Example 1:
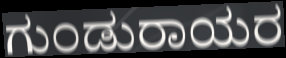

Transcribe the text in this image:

ಗುಂಡುರಾಯರ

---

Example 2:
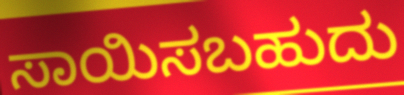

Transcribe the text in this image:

ಸಾಯಿಸಬಹುದು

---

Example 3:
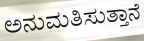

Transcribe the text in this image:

ಅನುಮತಿಸುತ್ತಾನೆ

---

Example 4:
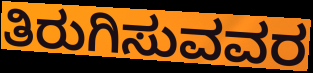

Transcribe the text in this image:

ತಿರುಗಿಸುವವರ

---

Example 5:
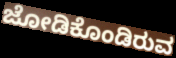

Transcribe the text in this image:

ಜೋಡಿಕೊಂಡಿರುವ